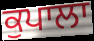
ਕੁਪਾਲਾ